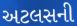
અટલસની